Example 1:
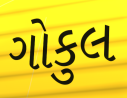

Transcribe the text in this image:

ગોકુલ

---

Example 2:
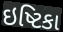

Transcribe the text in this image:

ઇષ્ટિકા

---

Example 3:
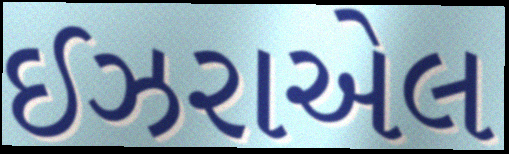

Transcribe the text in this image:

ઈઝરાએલ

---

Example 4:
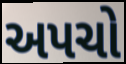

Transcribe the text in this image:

અપચો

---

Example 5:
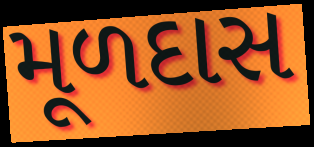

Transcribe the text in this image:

મૂળદાસ